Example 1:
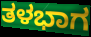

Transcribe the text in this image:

ತಳಭಾಗ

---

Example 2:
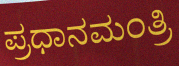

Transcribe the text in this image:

ಪ್ರಧಾನಮಂತ್ರಿ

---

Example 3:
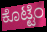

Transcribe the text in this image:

ಕೊಟ್ಟೆಂ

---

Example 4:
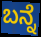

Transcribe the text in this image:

ಬನ್ನೆ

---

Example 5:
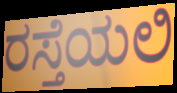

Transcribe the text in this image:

ರಸ್ತೆಯಲಿ